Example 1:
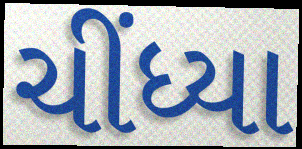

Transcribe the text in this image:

ચીંધ્યા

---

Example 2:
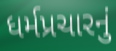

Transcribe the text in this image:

ધર્મપ્રચારનું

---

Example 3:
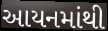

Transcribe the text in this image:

આયનમાંથી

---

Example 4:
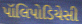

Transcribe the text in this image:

પૉલિપોડિયેસી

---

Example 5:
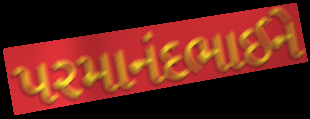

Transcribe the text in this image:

પરમાનંદભાઈને